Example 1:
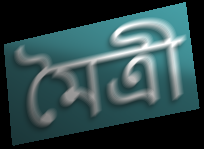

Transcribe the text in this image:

মৈত্রী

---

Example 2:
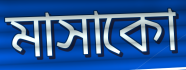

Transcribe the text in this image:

মাসাকো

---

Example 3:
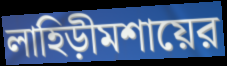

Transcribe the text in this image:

লাহিড়ীমশায়ের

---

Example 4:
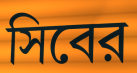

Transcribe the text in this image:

সিবের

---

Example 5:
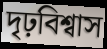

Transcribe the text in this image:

দৃঢ়বিশ্বাস